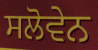
ਸਲੋਵੇਨ